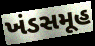
ખંડસમૂહ